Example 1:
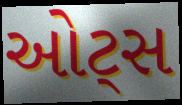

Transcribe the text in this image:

ઓટ્સ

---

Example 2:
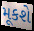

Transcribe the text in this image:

મૂકશે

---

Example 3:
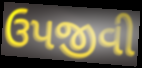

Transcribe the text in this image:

ઉપજીવી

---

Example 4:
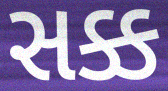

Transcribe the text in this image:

સક્ક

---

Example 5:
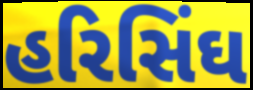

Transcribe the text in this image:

હરિસિંઘ